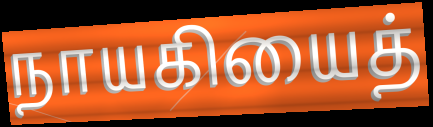
நாயகியைத்